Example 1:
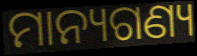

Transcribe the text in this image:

ମାନ୍ୟଗଣ୍ୟ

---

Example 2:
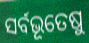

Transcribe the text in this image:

ସର୍ବଭୂତେଷୁ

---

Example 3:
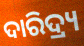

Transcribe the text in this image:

ଦାରିଦ୍ର୍ୟ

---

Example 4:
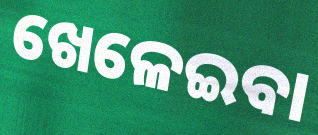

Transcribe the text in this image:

ଖେଳେଇବା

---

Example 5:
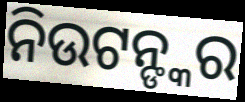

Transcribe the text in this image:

ନିଉଟନ୍ଙ୍କର